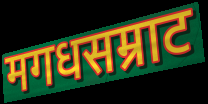
मगधसम्राट